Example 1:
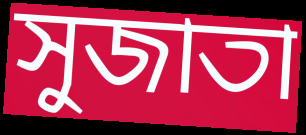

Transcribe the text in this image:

সুজাতা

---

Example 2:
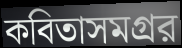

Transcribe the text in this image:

কবিতাসমগ্রর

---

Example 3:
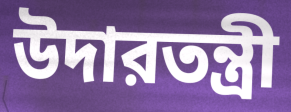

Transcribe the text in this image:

উদারতন্ত্রী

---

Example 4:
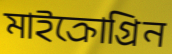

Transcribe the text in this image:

মাইক্রোগ্রিন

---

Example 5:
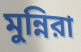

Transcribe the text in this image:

মুন্নিরা